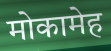
मोकामेह